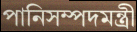
পানিসম্পদমন্ত্রী